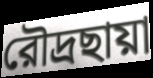
রৌদ্রছায়া